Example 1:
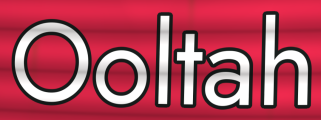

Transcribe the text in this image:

Ooltah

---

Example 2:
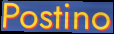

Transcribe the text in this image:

Postino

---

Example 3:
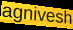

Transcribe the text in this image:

agnivesh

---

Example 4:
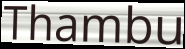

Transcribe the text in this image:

Thambu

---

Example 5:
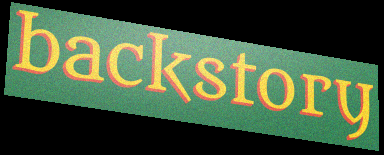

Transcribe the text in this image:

backstory